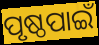
ପୃଷ୍ଠପାଇଁ